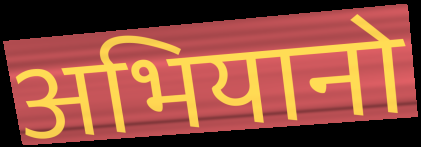
अभियानो